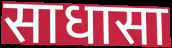
साधासा